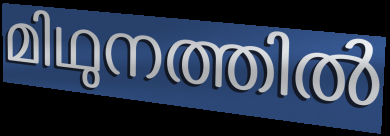
മിഥുനത്തിൽ